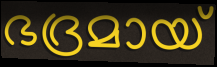
ഭദ്രമായ്